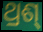
ଥ୍ରଶ୍